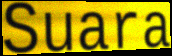
Suara